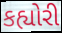
કહ્યોરી